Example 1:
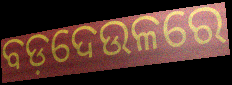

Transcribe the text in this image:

ବଡ଼ଦେଉଳରେ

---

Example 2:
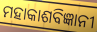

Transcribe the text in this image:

ମହାକାଶବିଜ୍ଞାନୀ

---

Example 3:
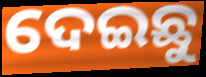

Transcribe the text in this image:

ଦେଇଛୁ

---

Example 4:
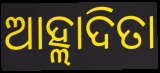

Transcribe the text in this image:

ଆହ୍ଲାଦିତା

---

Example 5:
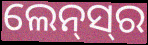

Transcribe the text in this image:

ଲେନ୍‌ସ୍‍ର